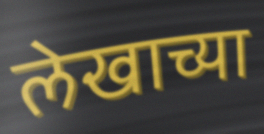
लेखाच्या